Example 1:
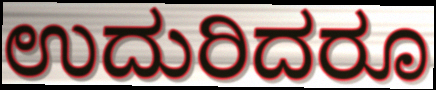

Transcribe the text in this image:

ಉದುರಿದರೂ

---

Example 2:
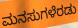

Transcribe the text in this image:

ಮನಸುಗಳೆರಡು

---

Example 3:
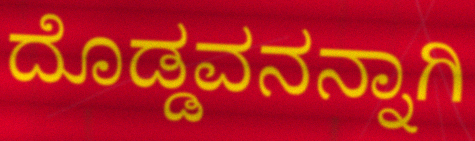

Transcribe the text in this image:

ದೊಡ್ಡವನನ್ನಾಗಿ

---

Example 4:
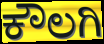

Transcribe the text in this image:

ಕೌಲಗಿ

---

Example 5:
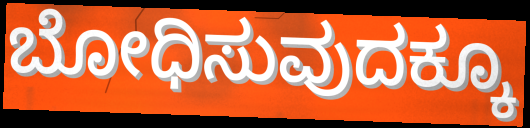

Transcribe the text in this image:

ಬೋಧಿಸುವುದಕ್ಕೂ